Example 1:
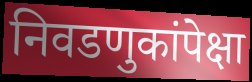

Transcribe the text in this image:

निवडणुकांपेक्षा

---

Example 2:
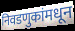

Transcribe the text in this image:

निवडणुकांमधून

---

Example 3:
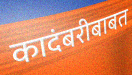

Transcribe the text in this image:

कादंबरीबाबत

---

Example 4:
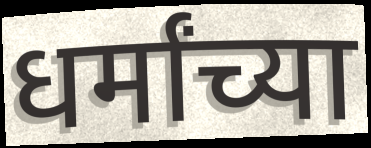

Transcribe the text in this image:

धर्मांच्या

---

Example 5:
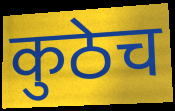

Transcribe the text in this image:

कुठेच